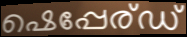
ഷെപ്പേര്ഡ്